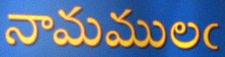
నామములఁ